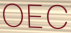
OEC